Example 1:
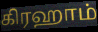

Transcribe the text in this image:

கிரஹாம்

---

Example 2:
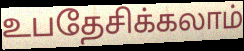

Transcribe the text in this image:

உபதேசிக்கலாம்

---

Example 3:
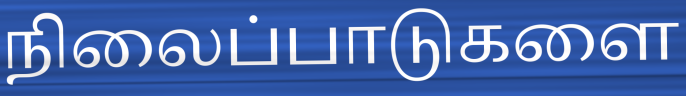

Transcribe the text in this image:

நிலைப்பாடுகளை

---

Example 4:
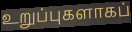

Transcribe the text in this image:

உறுப்புகளாகப்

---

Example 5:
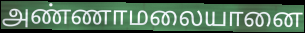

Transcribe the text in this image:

அண்ணாமலையானை